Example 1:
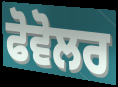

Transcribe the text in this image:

ਫੋਵੋਲਰ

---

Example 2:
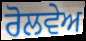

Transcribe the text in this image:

ਰੋਲਵੇਅ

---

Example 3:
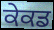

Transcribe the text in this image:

ਕੇਕਡ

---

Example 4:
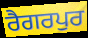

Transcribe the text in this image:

ਰੈਗਰਪੁਰ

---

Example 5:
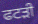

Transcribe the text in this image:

ਫਟੜੀ